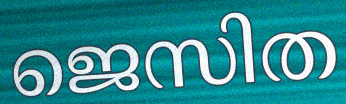
ജെസിത